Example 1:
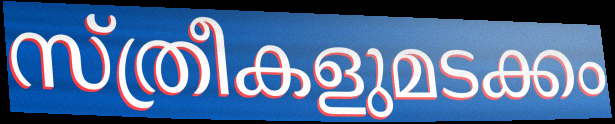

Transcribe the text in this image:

സ്ത്രീകളുമടക്കം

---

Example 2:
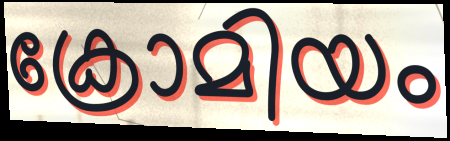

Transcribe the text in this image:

ക്രോമിയം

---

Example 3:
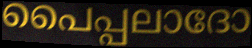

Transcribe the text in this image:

പൈപ്പലാദോ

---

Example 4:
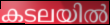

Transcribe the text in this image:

കടലയിൽ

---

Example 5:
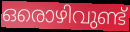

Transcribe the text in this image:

ഒരൊഴിവുണ്ട്